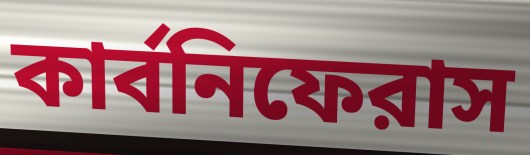
কার্বনিফেরাস